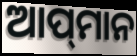
ଆପ୍‌ମାନ